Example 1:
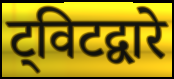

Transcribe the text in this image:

ट्विटद्वारे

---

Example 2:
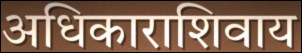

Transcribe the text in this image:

अधिकाराशिवाय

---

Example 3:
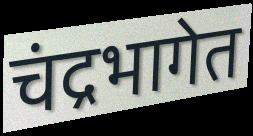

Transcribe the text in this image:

चंद्रभागेत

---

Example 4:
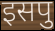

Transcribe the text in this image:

इसपु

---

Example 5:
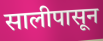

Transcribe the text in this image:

सालीपासून